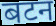
बटन